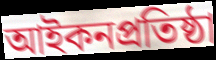
আইকনপ্রতিষ্ঠা